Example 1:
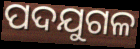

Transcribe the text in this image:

ପଦଯୁଗଳ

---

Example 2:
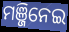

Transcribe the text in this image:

ମଞ୍ଜିନେଇ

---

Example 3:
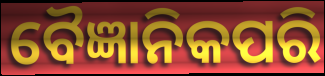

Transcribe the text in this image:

ବୈଜ୍ଞାନିକପରି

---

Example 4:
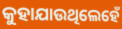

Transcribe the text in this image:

କୁହାଯାଉଥିଲେହେଁ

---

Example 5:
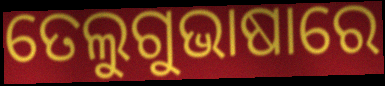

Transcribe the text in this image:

ତେଲୁଗୁଭାଷାରେ